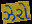
ઝેરો